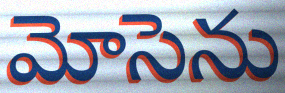
మోసెను